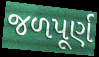
જળપૂર્ણ